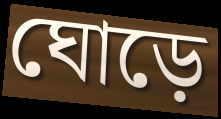
ঘোড়ে